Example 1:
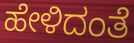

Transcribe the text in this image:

ಹೇಳಿದಂತೆ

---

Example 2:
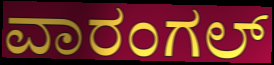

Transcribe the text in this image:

ವಾರಂಗಲ್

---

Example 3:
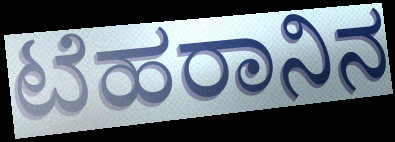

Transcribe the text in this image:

ಟೆಹರಾನಿನ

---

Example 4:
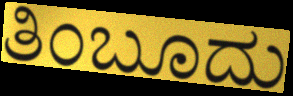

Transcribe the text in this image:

ತಿಂಬೂದು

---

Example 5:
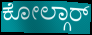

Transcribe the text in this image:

ಕೋಲ್ಗಾರ್